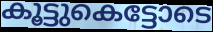
കൂട്ടുകെട്ടോടെ